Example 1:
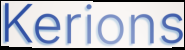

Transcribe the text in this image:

Kerions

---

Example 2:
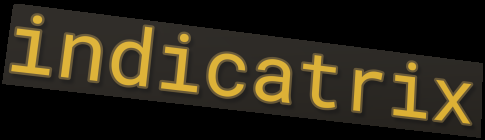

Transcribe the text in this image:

indicatrix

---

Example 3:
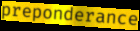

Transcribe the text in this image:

preponderance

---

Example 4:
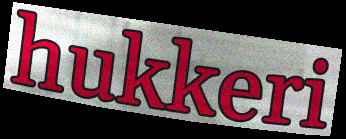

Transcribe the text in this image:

hukkeri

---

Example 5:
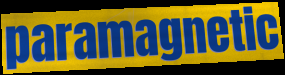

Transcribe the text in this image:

paramagnetic